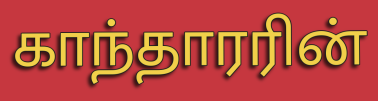
காந்தாரரின்